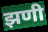
झणी